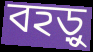
বহড়ু